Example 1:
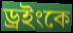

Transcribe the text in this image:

ড্রইংকে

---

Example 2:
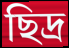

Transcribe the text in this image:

ছিদ্র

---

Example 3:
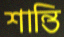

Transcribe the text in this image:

শান্তি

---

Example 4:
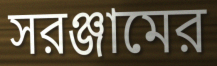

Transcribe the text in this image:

সরঞ্জামের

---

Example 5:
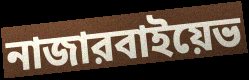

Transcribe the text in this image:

নাজারবাইয়েভ